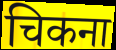
चिकना